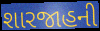
શારજાહની